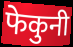
फेकुनी